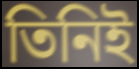
তিনিই